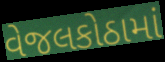
વેજલકોઠામાં